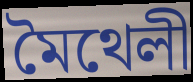
মৈথেলী